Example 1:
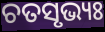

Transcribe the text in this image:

ଚତସୃଭ୍ୟଃ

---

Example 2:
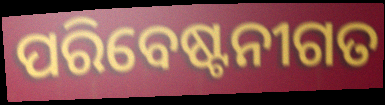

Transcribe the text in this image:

ପରିବେଷ୍ଟନୀଗତ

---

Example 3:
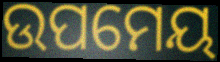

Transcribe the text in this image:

ଉପମେୟ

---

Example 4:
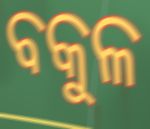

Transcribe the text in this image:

ବକୁଳ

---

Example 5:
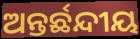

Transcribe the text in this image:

ଅନ୍ତର୍ଛନ୍ଦୀୟ